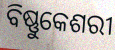
ବିଷ୍ଣୁକେଶରୀ